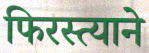
फिरस्त्याने